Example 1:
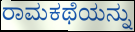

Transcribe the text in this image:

ರಾಮಕಥೆಯನ್ನು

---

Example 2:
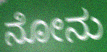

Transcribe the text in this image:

ನೋನು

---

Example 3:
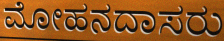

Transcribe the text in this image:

ಮೋಹನದಾಸರು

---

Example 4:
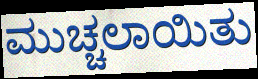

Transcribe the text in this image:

ಮುಚ್ಚಲಾಯಿತು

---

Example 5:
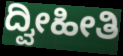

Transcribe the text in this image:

ದ್ವೀಹೀತಿ